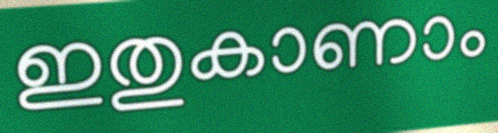
ഇതുകാണാം